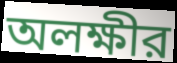
অলক্ষীর